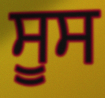
ਸੂਸ